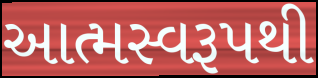
આત્મસ્વરૂપથી